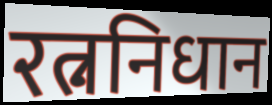
रत्ननिधान